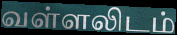
வள்ளலிடம்